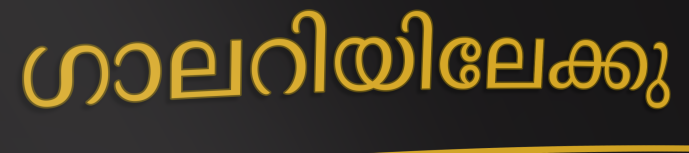
ഗാലറിയിലേക്കു